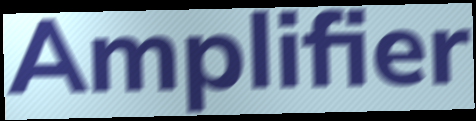
Amplifier